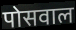
पोसवाल